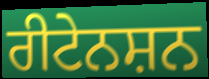
ਰੀਟੇਨਸ਼ਨ